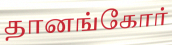
தானங்கோர்